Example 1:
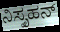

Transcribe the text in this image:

ನಿಸ್ಪೃಹನ್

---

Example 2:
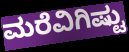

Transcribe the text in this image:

ಮರೆವಿಗಿಷ್ಟು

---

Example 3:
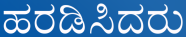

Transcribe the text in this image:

ಹರಡಿಸಿದರು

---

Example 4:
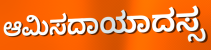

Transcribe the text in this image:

ಆಮಿಸದಾಯಾದಸ್ಸ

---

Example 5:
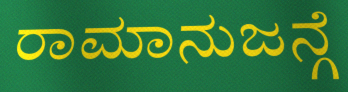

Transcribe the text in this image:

ರಾಮಾನುಜನ್ಗೆ